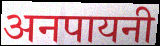
अनपायनी